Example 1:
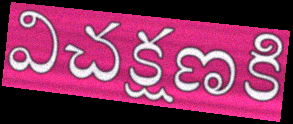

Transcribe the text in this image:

విచక్షణకి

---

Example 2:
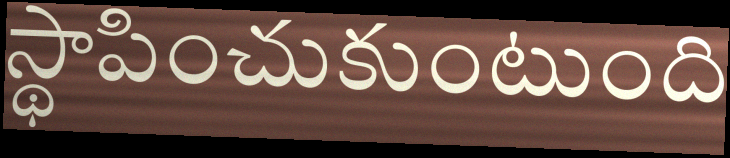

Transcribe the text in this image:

స్థాపించుకుంటుంది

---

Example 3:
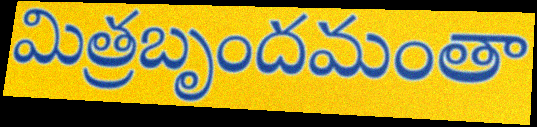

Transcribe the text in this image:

మిత్రబృందమంతా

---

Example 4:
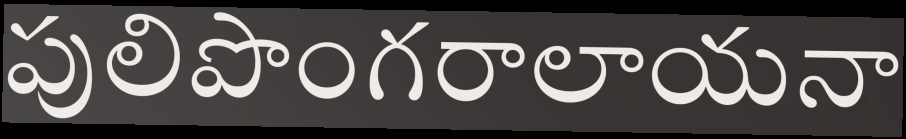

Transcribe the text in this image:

పులిపొంగరాలాయనా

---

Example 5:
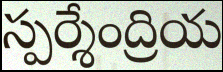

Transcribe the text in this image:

స్పర్శేంద్రియ